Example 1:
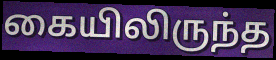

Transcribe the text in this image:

கையிலிருந்த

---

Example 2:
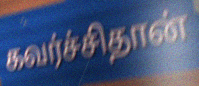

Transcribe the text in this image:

கவர்ச்சிதான்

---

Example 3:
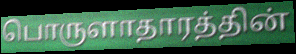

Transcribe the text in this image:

பொருளாதாரத்தின்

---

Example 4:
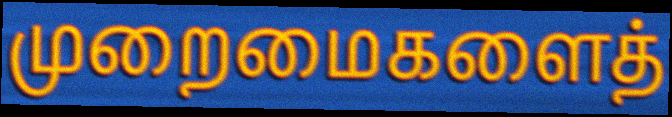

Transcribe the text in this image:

முறைமைகளைத்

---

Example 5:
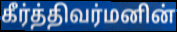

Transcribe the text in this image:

கீர்த்திவர்மனின்